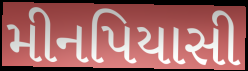
મીનપિયાસી